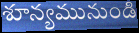
శూన్యమునుండి